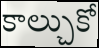
కాల్చుకో